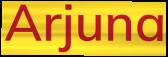
Arjuna